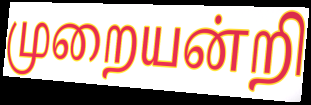
முறையன்றி